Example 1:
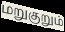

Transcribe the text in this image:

மறுகுறும்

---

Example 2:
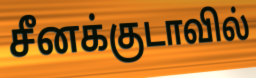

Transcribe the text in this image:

சீனக்குடாவில்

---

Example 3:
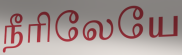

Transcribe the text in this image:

நீரிலேயே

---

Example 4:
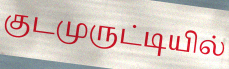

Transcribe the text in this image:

குடமுருட்டியில்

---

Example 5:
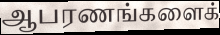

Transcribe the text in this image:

ஆபரணங்களைக்